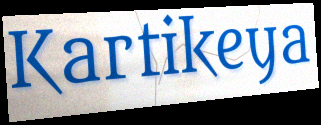
Kartikeya